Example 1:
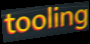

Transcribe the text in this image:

tooling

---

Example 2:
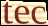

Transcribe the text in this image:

tec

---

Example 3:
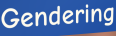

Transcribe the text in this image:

Gendering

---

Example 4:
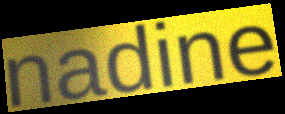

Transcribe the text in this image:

nadine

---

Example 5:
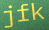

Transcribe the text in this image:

jfk